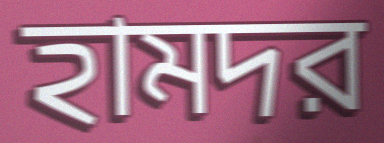
হামদর